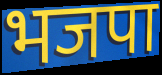
भजपा